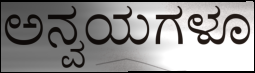
ಅನ್ವಯಗಳೂ